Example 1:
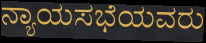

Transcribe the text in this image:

ನ್ಯಾಯಸಭೆಯವರು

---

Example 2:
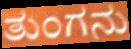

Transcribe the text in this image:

ತುಂಗನು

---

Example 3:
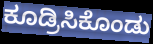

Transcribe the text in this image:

ಕೂಡ್ರಿಸಿಕೊಂಡು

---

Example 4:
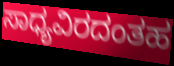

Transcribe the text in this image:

ಸಾಧ್ಯವಿರದಂತಹ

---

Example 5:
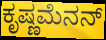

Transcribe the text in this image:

ಕೃಷ್ಣಮೆನನ್